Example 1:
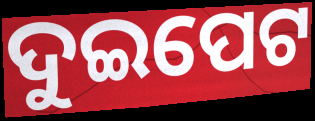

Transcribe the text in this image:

ଦୁଇପେଟ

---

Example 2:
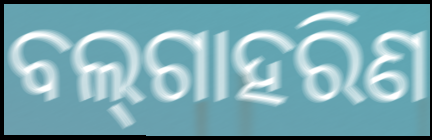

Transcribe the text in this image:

ବଲ୍‌ଗାହରିଣ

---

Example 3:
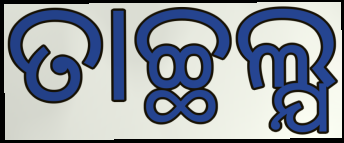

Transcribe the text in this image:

ତାଚ୍ଛଲ୍ଯ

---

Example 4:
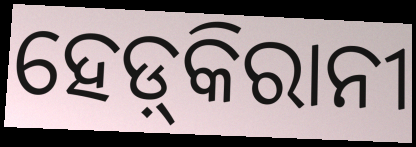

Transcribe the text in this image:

ହେଡ଼୍‌କିରାନୀ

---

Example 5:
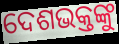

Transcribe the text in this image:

ଦେଶଭକ୍ତଙ୍କୁ